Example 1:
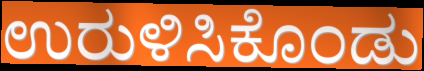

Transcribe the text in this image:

ಉರುಳಿಸಿಕೊಂಡು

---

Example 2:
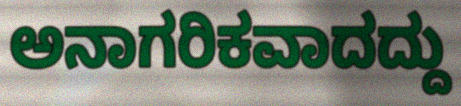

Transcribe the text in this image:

ಅನಾಗರಿಕವಾದದ್ದು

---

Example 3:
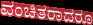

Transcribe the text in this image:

ವಂಚಿತರಾದರೂ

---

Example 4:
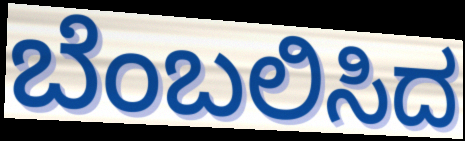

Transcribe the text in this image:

ಬೆಂಬಲಿಸಿದ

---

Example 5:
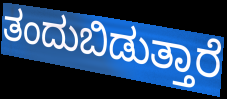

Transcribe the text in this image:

ತಂದುಬಿಡುತ್ತಾರೆ